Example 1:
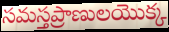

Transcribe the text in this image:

సమస్తప్రాణులయొక్క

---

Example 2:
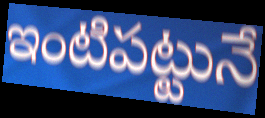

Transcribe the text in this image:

ఇంటిపట్టునే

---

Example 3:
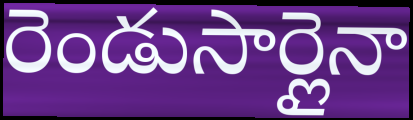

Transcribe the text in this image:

రెండుసార్లైనా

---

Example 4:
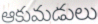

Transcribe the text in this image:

ఆకుమడులు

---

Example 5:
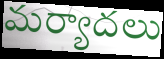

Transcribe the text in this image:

మర్యాదలు